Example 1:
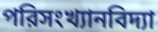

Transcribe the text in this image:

পরিসংখ্যানবিদ্যা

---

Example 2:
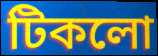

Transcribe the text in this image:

টিকলো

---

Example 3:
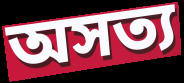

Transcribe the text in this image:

অসত্য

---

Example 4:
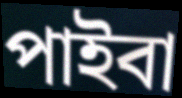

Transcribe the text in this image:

পাইবা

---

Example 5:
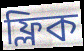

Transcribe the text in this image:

ফ্লিক